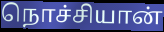
நொச்சியான்